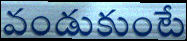
వండుకుంటే